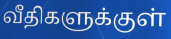
வீதிகளுக்குள்